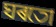
ঘৰতো